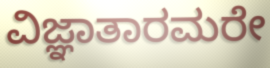
ವಿಜ್ಞಾತಾರಮರೇ